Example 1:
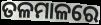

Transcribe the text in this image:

ତଳମାଳରେ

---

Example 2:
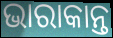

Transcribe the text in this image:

ଭାରାକାନ୍ତ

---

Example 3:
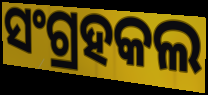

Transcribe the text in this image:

ସଂଗ୍ରହକଲ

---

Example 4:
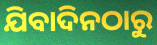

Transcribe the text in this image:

ଯିବାଦିନଠାରୁ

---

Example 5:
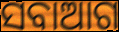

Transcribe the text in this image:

ସବାଆଗ